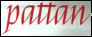
pattan